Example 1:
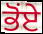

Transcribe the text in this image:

ਭੋਂਏ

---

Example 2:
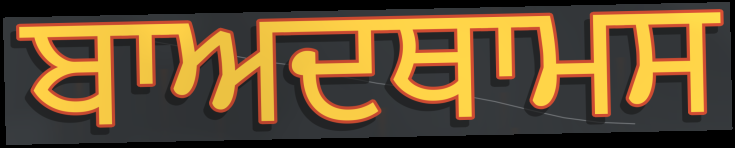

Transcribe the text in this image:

ਬਾਅਦਥਾਮਸ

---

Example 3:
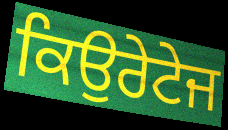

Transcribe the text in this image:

ਕਿਉਰੇਟੇਜ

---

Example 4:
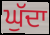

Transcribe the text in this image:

ਘੁੱਦਾ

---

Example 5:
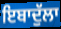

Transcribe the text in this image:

ਇਬਾਦੁੱਲਾ